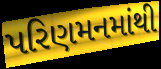
પરિણમનમાંથી